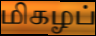
மிகழப்